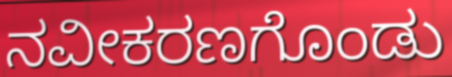
ನವೀಕರಣಗೊಂಡು